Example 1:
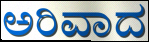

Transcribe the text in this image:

ಅರಿವಾದ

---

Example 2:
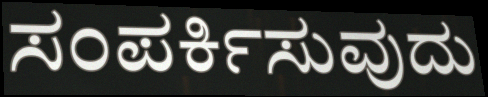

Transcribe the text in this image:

ಸಂಪರ್ಕಿಸುವುದು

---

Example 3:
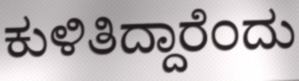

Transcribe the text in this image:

ಕುಳಿತಿದ್ದಾರೆಂದು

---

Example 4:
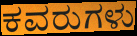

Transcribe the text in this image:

ಕವರುಗಳು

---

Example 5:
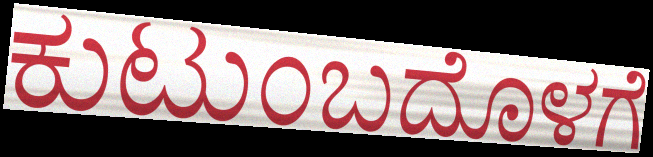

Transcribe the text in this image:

ಕುಟುಂಬದೊಳಗೆ